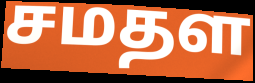
சமதள